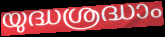
യുദ്ധശ്രദ്ധാം